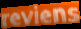
reviens